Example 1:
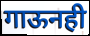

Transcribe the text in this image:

गाऊनही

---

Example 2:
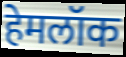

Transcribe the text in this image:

हेमलॉक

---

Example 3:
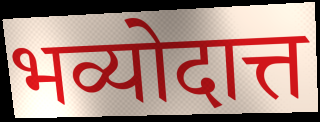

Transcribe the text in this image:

भव्योदात्त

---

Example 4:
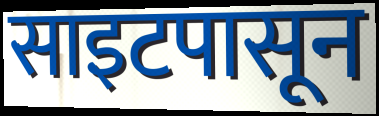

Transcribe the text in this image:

साइटपासून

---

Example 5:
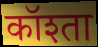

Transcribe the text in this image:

कॉश्ता